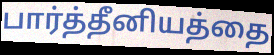
பார்த்தீனியத்தை